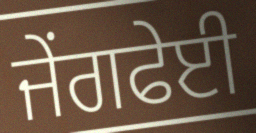
ਜੇਂਗਫੇਈ